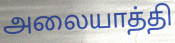
அலையாத்தி